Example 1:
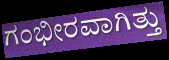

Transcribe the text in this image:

ಗಂಭೀರವಾಗಿತ್ತು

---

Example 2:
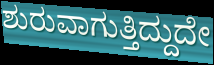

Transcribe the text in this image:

ಶುರುವಾಗುತ್ತಿದ್ದುದೇ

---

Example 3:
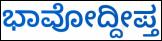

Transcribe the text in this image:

ಭಾವೋದ್ದೀಪ್ತ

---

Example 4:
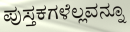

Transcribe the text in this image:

ಪುಸ್ತಕಗಳೆಲ್ಲವನ್ನೂ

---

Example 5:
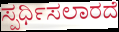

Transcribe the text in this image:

ಸ್ಪರ್ಧಿಸಲಾರದೆ